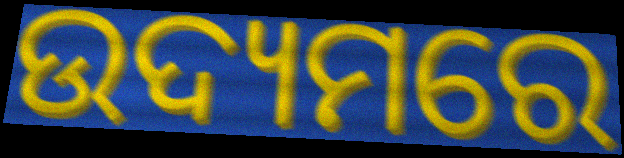
ଉଦ୍ୟମରେ